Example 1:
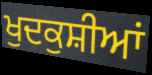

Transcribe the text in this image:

ਖੁਦਕੁਸ਼ੀਆਂ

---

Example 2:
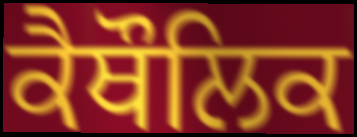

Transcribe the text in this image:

ਕੈਥੌਲਿਕ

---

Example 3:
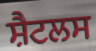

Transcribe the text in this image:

ਸ਼ੈਟਲਸ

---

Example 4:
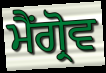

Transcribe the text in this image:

ਮੈਂਗ੍ਰੋਵ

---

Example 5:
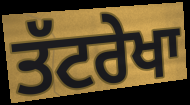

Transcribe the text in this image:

ਤੱਟਰੇਖਾ